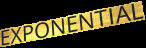
EXPONENTIAL